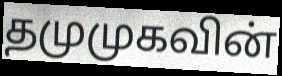
தமுமுகவின்